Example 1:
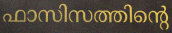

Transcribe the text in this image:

ഫാസിസത്തിന്റെ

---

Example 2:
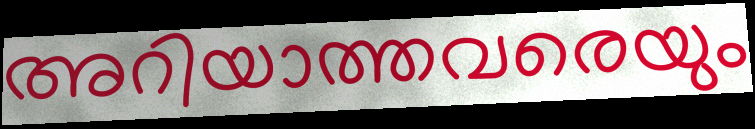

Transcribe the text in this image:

അറിയാത്തവരെയും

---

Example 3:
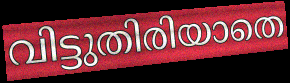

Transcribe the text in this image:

വിട്ടുതിരിയാതെ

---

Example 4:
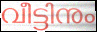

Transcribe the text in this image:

വീട്ടിനും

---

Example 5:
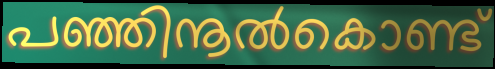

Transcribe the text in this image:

പഞ്ഞിനൂൽകൊണ്ട്